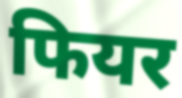
फियर